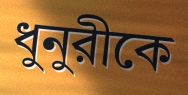
ধুনুরীকে